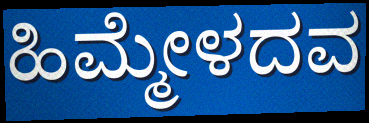
ಹಿಮ್ಮೇಳದವ